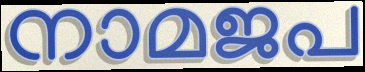
നാമജപ